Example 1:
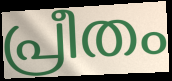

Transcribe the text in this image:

പ്രീതം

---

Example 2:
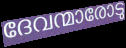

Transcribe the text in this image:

ദേവന്മാരോടു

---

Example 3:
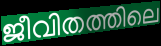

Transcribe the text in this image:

ജീവിതത്തിലെ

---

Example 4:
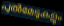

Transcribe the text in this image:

പുൽമേടുകളും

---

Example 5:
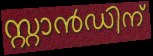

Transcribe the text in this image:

സ്റ്റാൻഡിന്